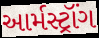
આર્મસ્ટ્રૉંગ